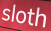
sloth